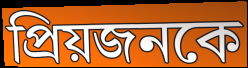
প্রিয়জনকে